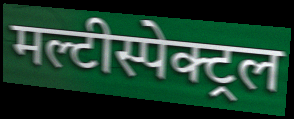
मल्टीस्पेक्ट्रल